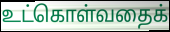
உட்கொள்வதைக்